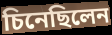
চিনেছিলেন